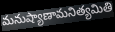
మనుష్యాణామనిత్యమితి